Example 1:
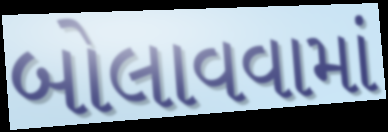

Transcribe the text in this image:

બોલાવવામાં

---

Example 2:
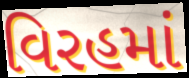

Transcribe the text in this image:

વિરહમાં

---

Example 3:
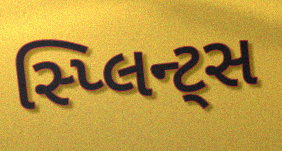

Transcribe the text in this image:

સ્પ્લિન્ટ્સ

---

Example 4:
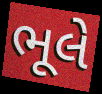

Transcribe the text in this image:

ભૂલે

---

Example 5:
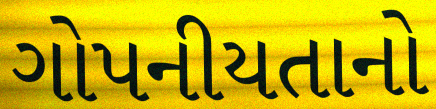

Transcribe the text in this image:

ગોપનીયતાનો